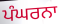
ਪੰਘਰਨਾ